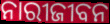
ନାରୀଜୀବନ